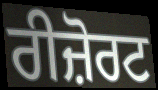
ਰੀਜ਼ੋਰਟ